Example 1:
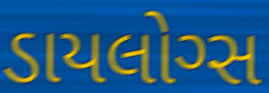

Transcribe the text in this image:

ડાયલોગ્સ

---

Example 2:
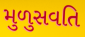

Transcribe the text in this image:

મુળુસવતિ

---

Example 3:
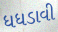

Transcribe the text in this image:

ધધડાવી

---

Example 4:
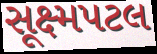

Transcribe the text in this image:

સૂક્ષ્મપટલ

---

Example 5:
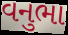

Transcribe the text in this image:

વનુભા